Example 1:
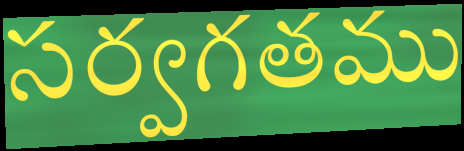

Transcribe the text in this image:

సర్వగతము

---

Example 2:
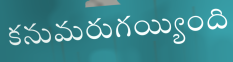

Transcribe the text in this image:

కనుమరుగయ్యింది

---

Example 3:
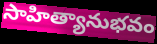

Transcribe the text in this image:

సాహిత్యానుభవం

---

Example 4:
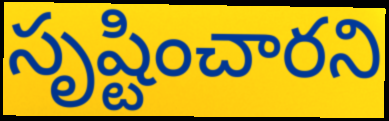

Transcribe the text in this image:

సృష్టించారని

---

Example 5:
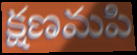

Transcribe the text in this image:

క్షణమపి